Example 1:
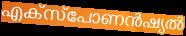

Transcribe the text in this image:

എക്‌സ്‌പോണൻഷ്യൽ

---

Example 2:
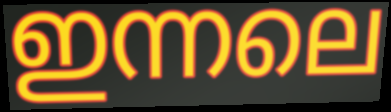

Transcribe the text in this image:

ഇന്നലെ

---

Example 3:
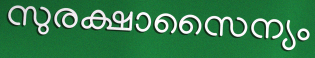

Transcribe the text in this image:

സുരക്ഷാസൈന്യം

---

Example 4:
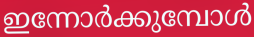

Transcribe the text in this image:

ഇന്നോർക്കുമ്പോൾ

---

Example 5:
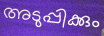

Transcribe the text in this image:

അടുപ്പിക്കും